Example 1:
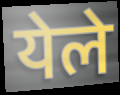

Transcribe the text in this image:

येले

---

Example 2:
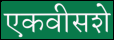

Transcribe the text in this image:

एकवीसशे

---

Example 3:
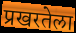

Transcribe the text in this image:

प्रखरतेला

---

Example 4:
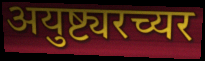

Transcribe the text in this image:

अयुष्ट्यरच्यर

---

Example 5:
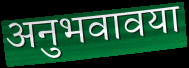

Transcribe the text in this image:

अनुभवावया